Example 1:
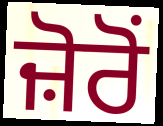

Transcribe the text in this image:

ਜ਼ੋਰੋਂ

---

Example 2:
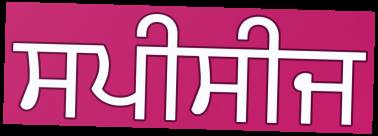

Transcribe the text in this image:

ਸਪੀਸੀਜ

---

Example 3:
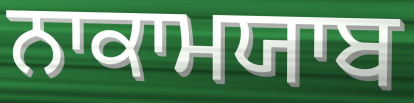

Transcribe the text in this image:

ਨਾਕਾਮਯਾਬ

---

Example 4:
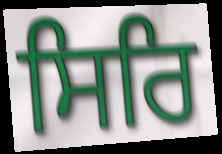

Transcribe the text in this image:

ਸਿਰਿ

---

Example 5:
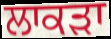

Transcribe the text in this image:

ਲਾਕੜਾ